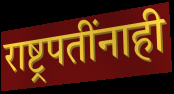
राष्ट्रपतींनाही